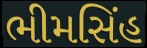
ભીમસિંહ